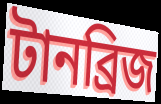
টানব্রিজ